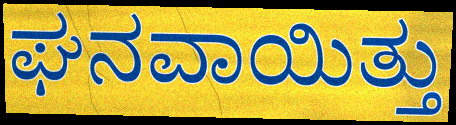
ಘನವಾಯಿತ್ತು